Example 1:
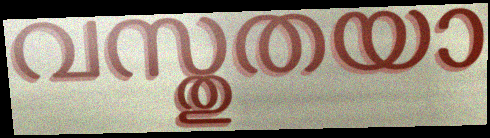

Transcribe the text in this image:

വസ്തുതയാ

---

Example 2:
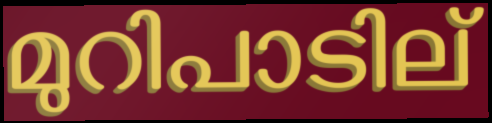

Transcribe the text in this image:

മുറിപാടില്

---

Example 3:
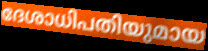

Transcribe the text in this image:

ദേശാധിപതിയുമായ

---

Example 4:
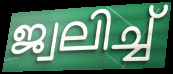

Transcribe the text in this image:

ജ്വലിച്ച്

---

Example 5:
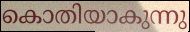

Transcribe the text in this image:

കൊതിയാകുന്നു